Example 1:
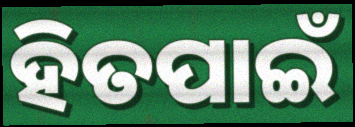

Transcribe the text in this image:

ହିତପାଇଁ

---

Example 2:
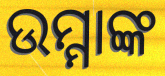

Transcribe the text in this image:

ଉମ୍ମାଙ୍କ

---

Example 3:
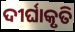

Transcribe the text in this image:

ଦୀର୍ଘାକୃତି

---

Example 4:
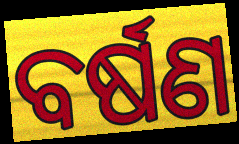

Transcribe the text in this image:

ବର୍ଷଣ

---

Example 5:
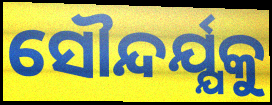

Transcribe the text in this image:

ସୌନ୍ଦର୍ଯ୍ଯକୁ